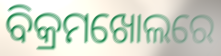
ବିକ୍ରମଖୋଲରେ